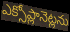
ఎక్సోప్లానెట్లను